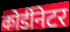
कोर्डीनेटर